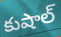
కుషాల్